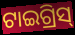
ଟାଇଗ୍ରିସ୍